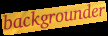
backgrounder